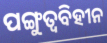
ପଙ୍ଗୁତ୍ୱବିହୀନ